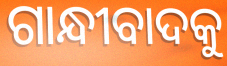
ଗାନ୍ଧୀବାଦକୁ